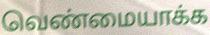
வெண்மையாக்க